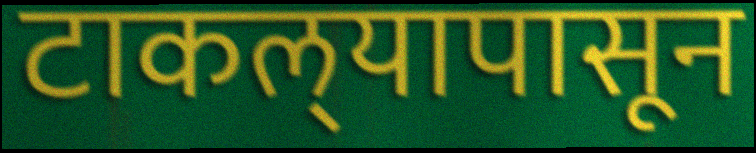
टाकल्यापासून